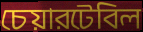
চেয়ারটেবিল